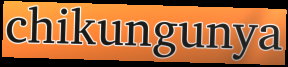
chikungunya